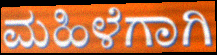
ಮಹಿಳೆಗಾಗಿ